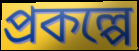
প্রকল্পে